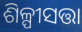
ଶିଳ୍ପୀସତ୍ତା